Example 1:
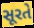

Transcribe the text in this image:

સૂરતે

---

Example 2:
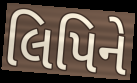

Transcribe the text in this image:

લિપિને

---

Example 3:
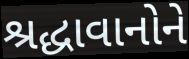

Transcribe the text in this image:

શ્રદ્ધાવાનોને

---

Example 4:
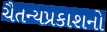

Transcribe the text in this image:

ચૈતન્યપ્રકાશનો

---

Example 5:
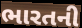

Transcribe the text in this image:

ભારતની